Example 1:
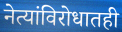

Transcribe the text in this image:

नेत्यांविरोधातही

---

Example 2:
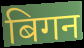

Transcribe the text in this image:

बिगन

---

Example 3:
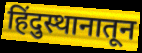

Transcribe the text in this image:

हिंदुस्थानातून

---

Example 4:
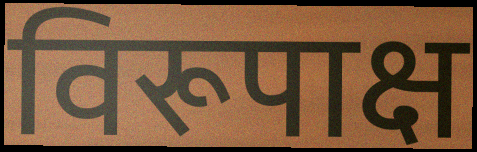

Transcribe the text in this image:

विरूपाक्ष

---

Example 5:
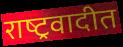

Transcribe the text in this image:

राष्ट्रवादीत